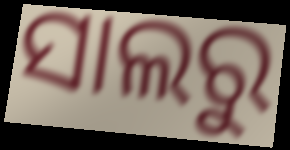
ସାଲରୁ